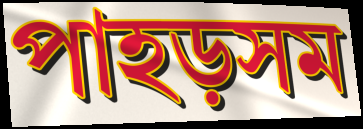
পাহড়সম